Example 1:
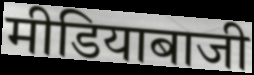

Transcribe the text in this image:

मीडियाबाजी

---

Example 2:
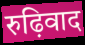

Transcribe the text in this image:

रुढ़िवाद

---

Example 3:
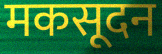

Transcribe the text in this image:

मकसूदन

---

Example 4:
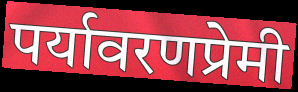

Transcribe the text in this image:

पर्यावरणप्रेमी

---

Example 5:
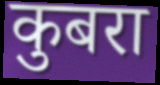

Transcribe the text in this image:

कुबरा